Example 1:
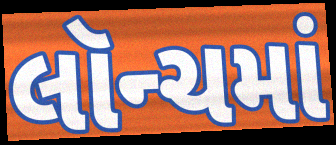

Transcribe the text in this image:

લૉન્ચમાં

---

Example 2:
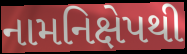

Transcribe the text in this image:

નામનિક્ષેપથી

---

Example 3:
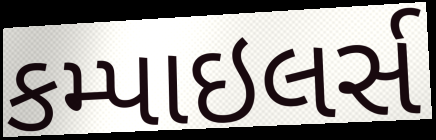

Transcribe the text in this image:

કમ્પાઇલર્સ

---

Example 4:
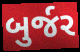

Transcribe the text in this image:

બુર્જર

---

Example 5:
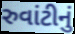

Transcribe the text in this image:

રુવાંટીનું